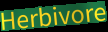
Herbivore